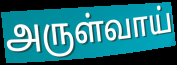
அருள்வாய்